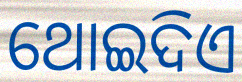
ଥୋଇଦିଏ